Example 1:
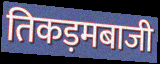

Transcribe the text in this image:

तिकड़मबाजी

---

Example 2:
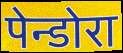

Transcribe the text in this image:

पेन्डोरा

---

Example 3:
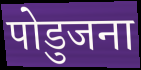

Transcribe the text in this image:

पोडुजना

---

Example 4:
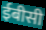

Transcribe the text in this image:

ईबीसी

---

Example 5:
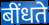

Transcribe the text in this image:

बींधते